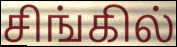
சிங்கில்